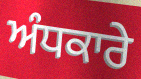
ਅੰਧਕਾਰੇ